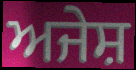
ਅਜੇਸ਼